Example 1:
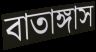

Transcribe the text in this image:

বাতাঙ্গাস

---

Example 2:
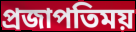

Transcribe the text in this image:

প্রজাপতিময়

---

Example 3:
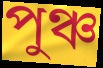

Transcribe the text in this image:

পুঞ্চ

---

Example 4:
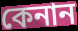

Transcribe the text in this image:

কেনান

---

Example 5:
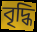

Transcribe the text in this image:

বৃদ্ধি